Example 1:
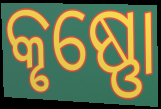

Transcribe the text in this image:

କୃଷ୍ଣୋ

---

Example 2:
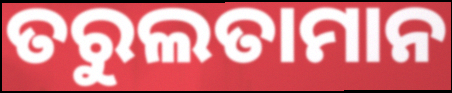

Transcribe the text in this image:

ତରୁଲତାମାନ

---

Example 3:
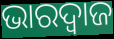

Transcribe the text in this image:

ଭାରଦ୍ୱାଜ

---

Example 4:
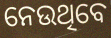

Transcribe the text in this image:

ନେଉଥିବେ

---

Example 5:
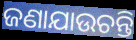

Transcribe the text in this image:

ଜଣାଯାଉଚନ୍ତି